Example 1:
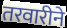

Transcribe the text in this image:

तरवारीने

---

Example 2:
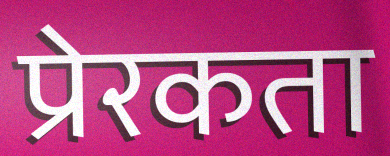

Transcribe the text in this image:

प्रेरकता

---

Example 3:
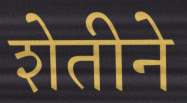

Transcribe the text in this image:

शेतीने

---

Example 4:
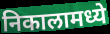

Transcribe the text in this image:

निकालामध्ये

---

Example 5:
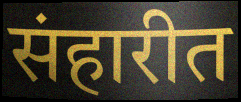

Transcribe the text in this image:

संहारीत